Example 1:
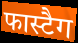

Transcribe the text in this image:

फास्‍टैग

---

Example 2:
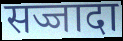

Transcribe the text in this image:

सज्जादा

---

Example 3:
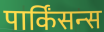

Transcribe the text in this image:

पार्किंसन्स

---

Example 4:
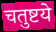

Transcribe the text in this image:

चतुष्टये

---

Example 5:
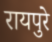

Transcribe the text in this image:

रायपुरे